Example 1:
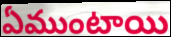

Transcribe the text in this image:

ఏముంటాయి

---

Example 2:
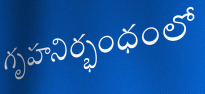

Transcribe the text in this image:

గృహనిర్భంధంలో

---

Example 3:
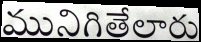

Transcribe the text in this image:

మునిగితేలారు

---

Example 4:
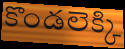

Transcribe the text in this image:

కొండలెక్కి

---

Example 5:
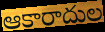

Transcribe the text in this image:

ఆకారాదుల